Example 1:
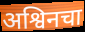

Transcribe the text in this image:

अश्विनचा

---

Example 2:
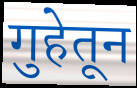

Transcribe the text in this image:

गुहेतून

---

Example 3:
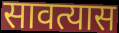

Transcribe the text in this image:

सावत्यास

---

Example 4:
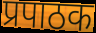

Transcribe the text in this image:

प्रपाठक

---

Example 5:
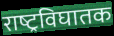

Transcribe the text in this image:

राष्ट्रविघातक